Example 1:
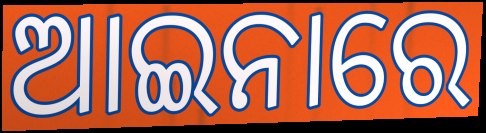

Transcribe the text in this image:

ଆଇନାରେ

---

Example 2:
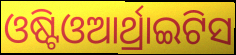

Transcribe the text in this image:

ଓଷ୍ଟିଓଆର୍ଥ୍ରାଇଟିସ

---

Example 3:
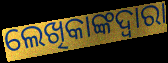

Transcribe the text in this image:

ଲେଖିକାଙ୍କଦ୍ୱାରା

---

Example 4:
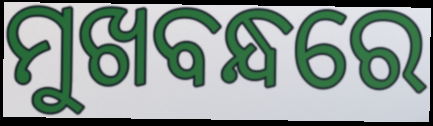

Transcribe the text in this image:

ମୁଖବନ୍ଧରେ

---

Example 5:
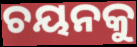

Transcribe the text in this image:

ଚୟନକୁ